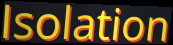
Isolation